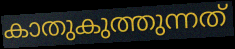
കാതുകുത്തുന്നത്